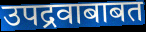
उपद्रवाबाबत